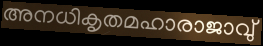
അനധികൃതമഹാരാജാവു്